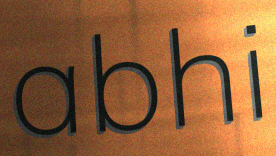
abhi